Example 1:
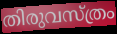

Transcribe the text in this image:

തിരുവസ്ത്രം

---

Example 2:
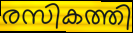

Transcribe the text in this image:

രസികത്തി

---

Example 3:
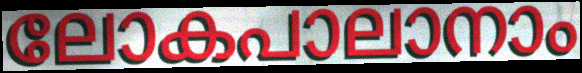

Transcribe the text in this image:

ലോകപാലാനാം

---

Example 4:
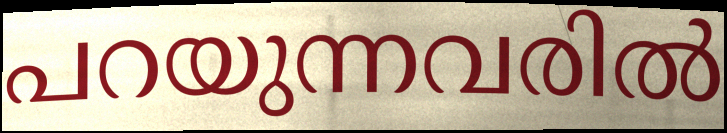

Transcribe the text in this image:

പറയുന്നവരിൽ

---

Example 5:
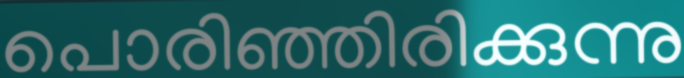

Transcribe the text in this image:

പൊരിഞ്ഞിരിക്കുന്നു